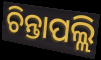
ଚିନ୍ତାପଲ୍ଲି